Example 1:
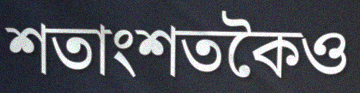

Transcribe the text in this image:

শতাংশতকৈও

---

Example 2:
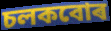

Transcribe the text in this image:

চলকবোৰ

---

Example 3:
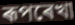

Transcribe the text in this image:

ৰূপৰেখা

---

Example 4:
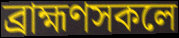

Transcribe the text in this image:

ব্ৰাহ্মণসকলে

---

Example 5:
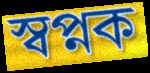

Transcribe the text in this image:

স্বপ্নক